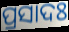
ପ୍ରସାଦଃ